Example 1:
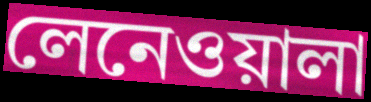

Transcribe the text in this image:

লেনেওয়ালা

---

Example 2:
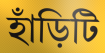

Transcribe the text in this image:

হাঁড়িটি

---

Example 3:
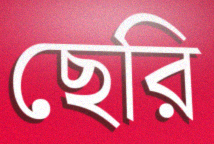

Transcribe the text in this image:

ছেরি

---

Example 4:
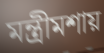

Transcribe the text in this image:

মন্ত্রীমশায়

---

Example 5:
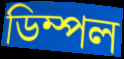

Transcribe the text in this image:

ডিম্পল